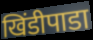
खिंडीपाडा